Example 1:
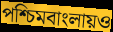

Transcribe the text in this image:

পশ্চিমবাংলায়ও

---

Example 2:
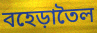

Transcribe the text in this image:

বহেড়াতৈল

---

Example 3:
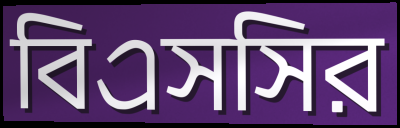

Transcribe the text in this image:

বিএসসির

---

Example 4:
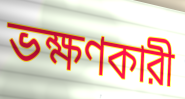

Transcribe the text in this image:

ভক্ষণকারী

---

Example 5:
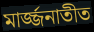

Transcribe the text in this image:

মার্জ্জনাতীত